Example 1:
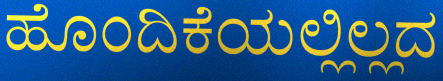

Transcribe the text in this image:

ಹೊಂದಿಕೆಯಲ್ಲಿಲ್ಲದ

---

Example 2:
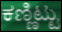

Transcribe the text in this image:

ಕಣ್ಣಿಟ್ಟು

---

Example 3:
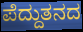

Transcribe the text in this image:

ಪೆದ್ದುತನದ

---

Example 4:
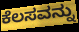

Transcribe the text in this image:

ಕೆಲಸವನ್ನು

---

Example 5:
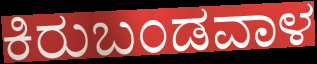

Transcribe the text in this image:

ಕಿರುಬಂಡವಾಳ